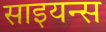
साइयन्स